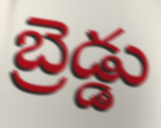
బ్రెడ్డు